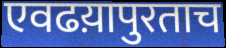
एवढय़ापुरताच